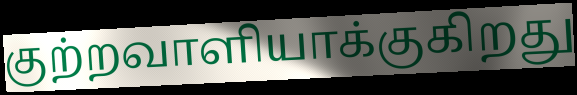
குற்றவாளியாக்குகிறது